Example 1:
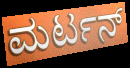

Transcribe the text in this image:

ಮರ್ಟನ್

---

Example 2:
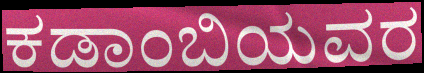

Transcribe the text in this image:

ಕಡಾಂಬಿಯವರ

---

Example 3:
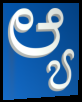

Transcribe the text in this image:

ಆ್ಯ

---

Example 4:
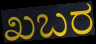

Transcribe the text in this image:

ಖಬರ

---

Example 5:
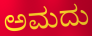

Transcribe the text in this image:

ಅಮದು